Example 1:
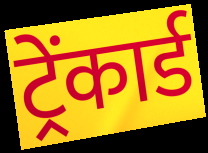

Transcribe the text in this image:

ट्रेंकार्ड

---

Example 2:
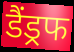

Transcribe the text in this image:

डैंड्रफ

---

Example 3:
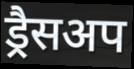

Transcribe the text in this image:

ड्रैसअप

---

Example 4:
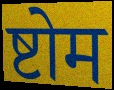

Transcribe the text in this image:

ष्टोम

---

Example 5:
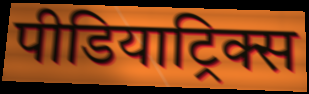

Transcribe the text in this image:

पीडियाट्रिक्स